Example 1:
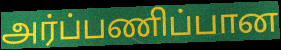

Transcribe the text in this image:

அர்ப்பணிப்பான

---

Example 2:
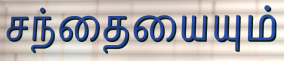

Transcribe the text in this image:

சந்தையையும்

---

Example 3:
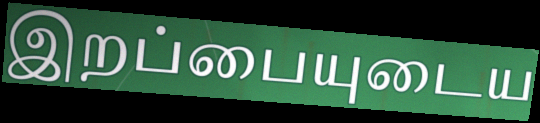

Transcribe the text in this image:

இறப்பையுடைய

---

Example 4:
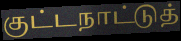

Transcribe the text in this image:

குட்டநாட்டுத்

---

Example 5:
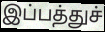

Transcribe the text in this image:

இப்பத்துச்